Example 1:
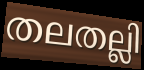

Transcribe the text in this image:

തലതല്ലി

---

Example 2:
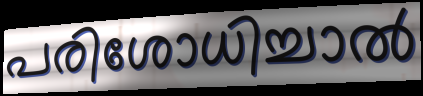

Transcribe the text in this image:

പരിശോധിച്ചാൽ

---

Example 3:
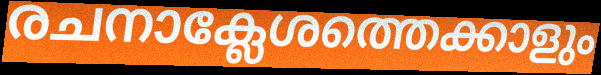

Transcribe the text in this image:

രചനാക്ലേശത്തെക്കാളും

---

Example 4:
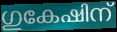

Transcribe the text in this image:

ഗുകേഷിന്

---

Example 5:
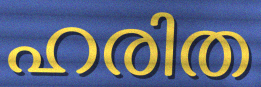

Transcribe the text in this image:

ഹരിത